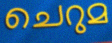
ചെറുമ